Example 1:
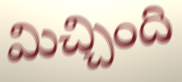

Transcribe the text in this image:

మిచ్చింది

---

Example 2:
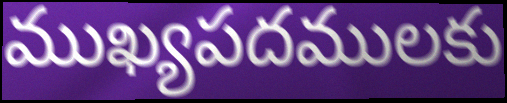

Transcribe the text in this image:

ముఖ్యపదములకు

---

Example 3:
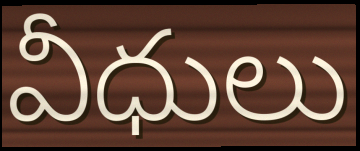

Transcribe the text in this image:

వీధులు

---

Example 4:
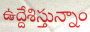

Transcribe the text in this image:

ఉద్దేశిస్తున్నాం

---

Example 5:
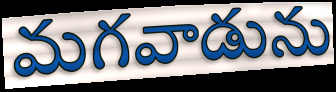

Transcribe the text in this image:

మగవాడును